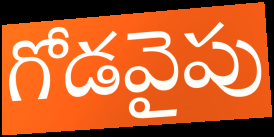
గోడవైపు